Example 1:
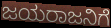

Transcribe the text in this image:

ಜಯರಾಜನಿಗೆ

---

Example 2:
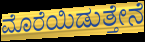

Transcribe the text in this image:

ಮೊರೆಯಿಡುತ್ತೇನೆ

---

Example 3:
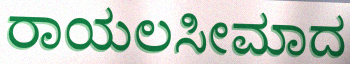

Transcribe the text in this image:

ರಾಯಲಸೀಮಾದ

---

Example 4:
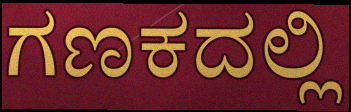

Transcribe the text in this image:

ಗಣಕದಲ್ಲಿ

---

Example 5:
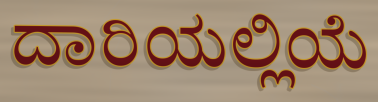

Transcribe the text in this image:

ದಾರಿಯಲ್ಲಿಯೆ